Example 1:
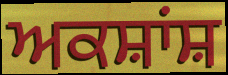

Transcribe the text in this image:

ਅਕਸ਼ਾਂਸ਼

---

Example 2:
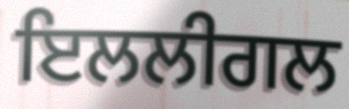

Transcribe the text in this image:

ਇਲਲੀਗਲ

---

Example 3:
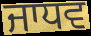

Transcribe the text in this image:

ਜਾਧਵ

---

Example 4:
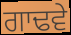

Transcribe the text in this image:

ਗਾਢਵੇ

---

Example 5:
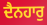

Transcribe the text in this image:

ਦੈਨਹਾਰੁ